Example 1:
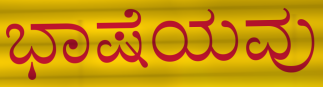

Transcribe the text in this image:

ಭಾಷೆಯವು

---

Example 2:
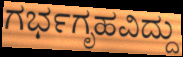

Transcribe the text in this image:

ಗರ್ಭಗೃಹವಿದ್ದು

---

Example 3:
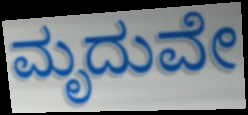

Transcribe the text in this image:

ಮೃದುವೇ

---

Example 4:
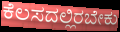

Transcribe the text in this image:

ಕೆಲಸದಲ್ಲಿರಬೇಕು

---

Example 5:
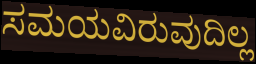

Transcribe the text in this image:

ಸಮಯವಿರುವುದಿಲ್ಲ